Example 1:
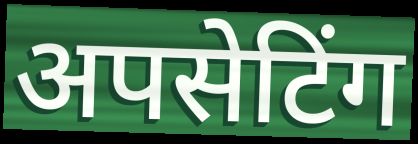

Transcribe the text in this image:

अपसेटिंग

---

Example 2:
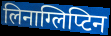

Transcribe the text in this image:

लिनाग्लिप्टिन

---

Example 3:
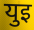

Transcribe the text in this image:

युइ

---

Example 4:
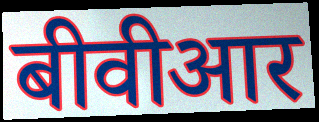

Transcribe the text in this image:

बीवीआर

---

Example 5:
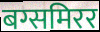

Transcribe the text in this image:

बग्समिरर